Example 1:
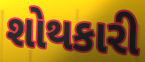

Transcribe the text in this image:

શોથકારી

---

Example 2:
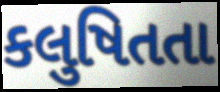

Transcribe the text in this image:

કલુષિતતા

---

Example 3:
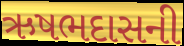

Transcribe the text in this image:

ઋષભદાસની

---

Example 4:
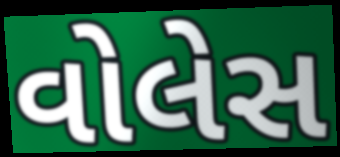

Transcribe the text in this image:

વોલેસ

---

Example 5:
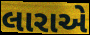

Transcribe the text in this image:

લારાએ